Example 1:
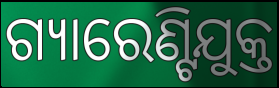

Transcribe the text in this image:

ଗ୍ୟାରେଣ୍ଟିଯୁକ୍ତ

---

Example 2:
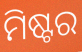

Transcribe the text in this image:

ମିଷ୍ଟର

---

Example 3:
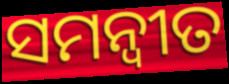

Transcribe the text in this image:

ସମନ୍ଵୀତ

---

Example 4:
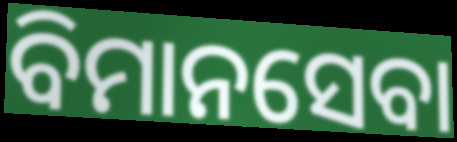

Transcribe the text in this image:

ବିମାନସେବା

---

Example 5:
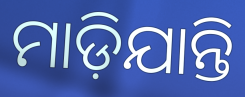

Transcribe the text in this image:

ମାଡ଼ିଯାନ୍ତି